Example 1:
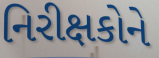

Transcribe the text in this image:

નિરીક્ષકોને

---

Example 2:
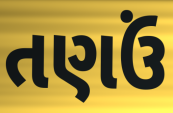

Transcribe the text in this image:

તણઉં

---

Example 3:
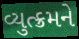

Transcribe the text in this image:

વ્યુત્ક્રમને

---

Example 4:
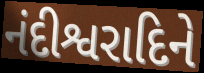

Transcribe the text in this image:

નંદીશ્વરાદિને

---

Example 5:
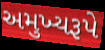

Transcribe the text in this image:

અમુખ્યરૂપે